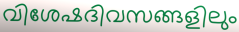
വിശേഷദിവസങ്ങളിലും